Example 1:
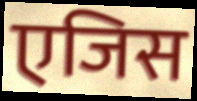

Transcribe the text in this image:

एजिस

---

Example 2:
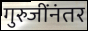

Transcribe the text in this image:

गुरुजींनंतर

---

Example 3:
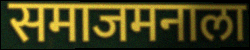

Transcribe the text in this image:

समाजमनाला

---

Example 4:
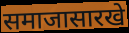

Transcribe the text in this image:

समाजासारखे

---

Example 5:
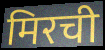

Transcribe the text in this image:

मिरची